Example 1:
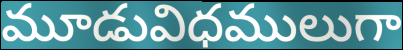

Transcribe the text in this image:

మూడువిధములుగా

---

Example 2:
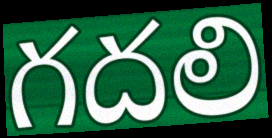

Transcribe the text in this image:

గదలి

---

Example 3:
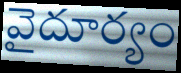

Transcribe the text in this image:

వైదూర్యం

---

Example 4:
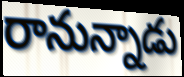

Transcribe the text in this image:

రానున్నాడు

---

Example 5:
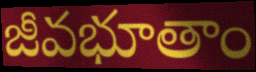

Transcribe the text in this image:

జీవభూతాం